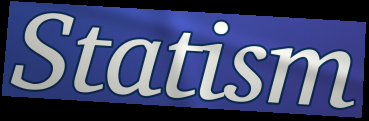
Statism